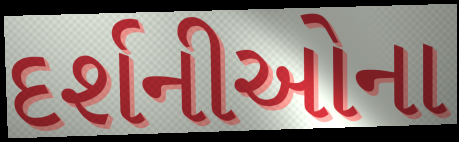
દર્શનીઓના